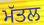
ਮੱਤਲ